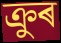
ক্ৰুৰ